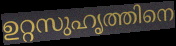
ഉറ്റസുഹൃത്തിനെ